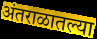
अंतराळातल्या